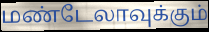
மண்டேலாவுக்கும்